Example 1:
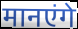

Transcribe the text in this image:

मानएंगे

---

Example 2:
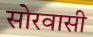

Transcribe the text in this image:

सोरवासी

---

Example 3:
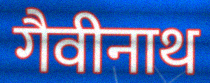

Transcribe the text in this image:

गैवीनाथ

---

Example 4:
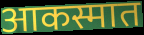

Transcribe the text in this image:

आकस्मात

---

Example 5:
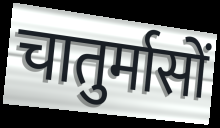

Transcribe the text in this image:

चातुर्मासों